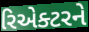
રિએક્ટરને